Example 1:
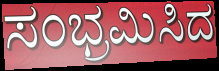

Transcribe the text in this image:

ಸಂಭ್ರಮಿಸಿದ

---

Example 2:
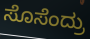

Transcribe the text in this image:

ಸೊಸೆಂದ್ರು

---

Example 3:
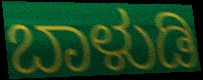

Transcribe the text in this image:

ಬಾಳುಡಿ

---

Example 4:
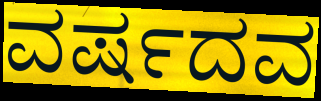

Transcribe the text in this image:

ವರ್ಷದವ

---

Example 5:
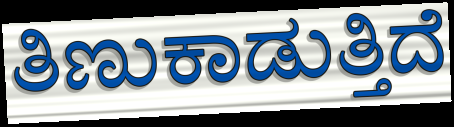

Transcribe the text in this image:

ತಿಣುಕಾಡುತ್ತಿದೆ